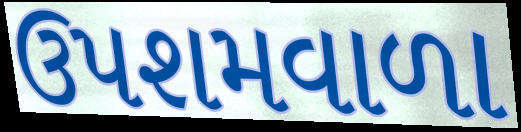
ઉપશમવાળા